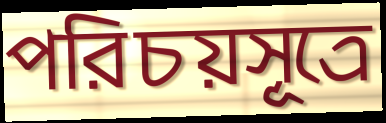
পরিচয়সূত্রে